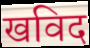
खविद